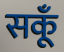
सकूँ